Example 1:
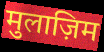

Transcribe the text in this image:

मुलाज़िम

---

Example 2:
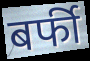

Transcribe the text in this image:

बर्फी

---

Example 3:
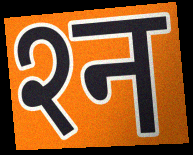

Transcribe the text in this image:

श्न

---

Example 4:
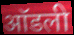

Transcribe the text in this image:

ऑडली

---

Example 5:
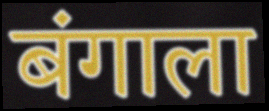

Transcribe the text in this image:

बंगाला